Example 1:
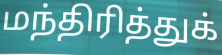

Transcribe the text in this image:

மந்திரித்துக்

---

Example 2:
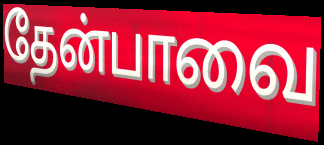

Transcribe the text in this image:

தேன்பாவை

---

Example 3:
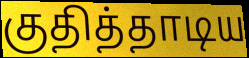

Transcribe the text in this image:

குதித்தாடிய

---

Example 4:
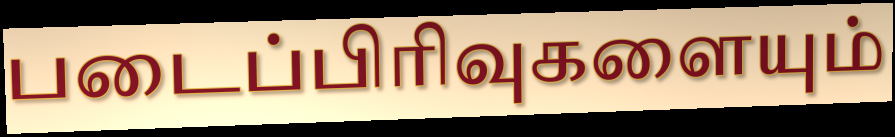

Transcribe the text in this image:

படைப்பிரிவுகளையும்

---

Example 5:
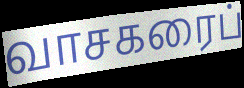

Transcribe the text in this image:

வாசகரைப்